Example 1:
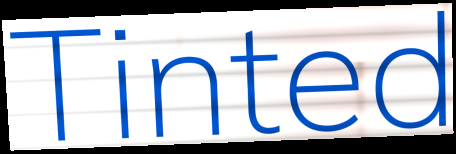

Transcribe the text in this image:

Tinted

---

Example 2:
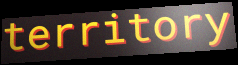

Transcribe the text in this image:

territory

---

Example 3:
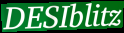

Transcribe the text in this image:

DESIblitz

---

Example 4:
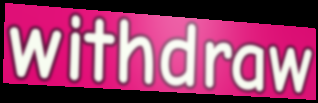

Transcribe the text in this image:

withdraw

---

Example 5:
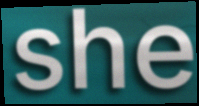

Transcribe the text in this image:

she